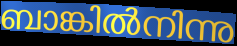
ബാങ്കിൽനിന്നു